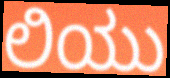
ಲಿಯು